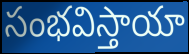
సంభవిస్తాయా